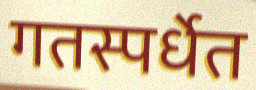
गतस्पर्धेत